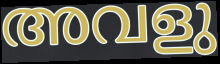
അവളു